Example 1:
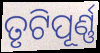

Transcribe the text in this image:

ତୃଟିପୂର୍ଣ୍ଣ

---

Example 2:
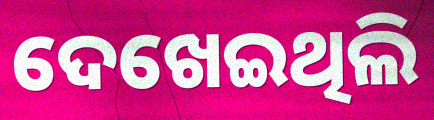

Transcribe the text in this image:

ଦେଖେଇଥିଲି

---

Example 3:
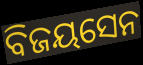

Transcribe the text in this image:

ବିଜୟସେନ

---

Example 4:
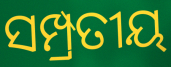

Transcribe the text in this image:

ସମ୍ପ୍ରତୀୟ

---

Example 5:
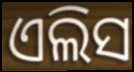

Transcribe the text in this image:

ଏଲିସ